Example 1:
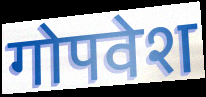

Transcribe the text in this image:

गोपवेश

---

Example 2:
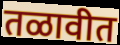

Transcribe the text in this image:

तळावीत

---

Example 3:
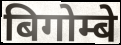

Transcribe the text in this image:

बिगोम्बे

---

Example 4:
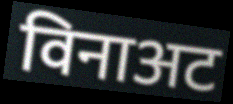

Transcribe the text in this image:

विनाअट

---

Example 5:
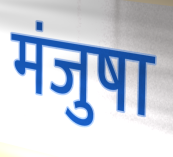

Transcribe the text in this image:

मंजुषा